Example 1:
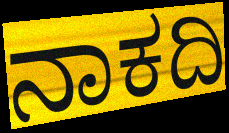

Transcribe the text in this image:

ನಾಕದಿ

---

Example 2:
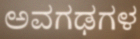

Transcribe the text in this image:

ಅವಗಢಗಳ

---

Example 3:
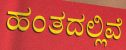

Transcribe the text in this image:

ಹಂತದಲ್ಲಿವೆ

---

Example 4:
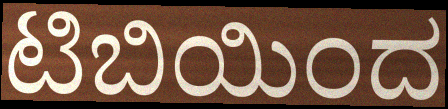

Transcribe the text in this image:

ಟಿಬಿಯಿಂದ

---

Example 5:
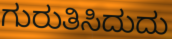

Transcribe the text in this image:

ಗುರುತಿಸಿದುದು